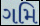
ગમિ